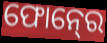
ଫୋନ୍‍ରେ